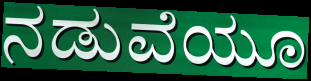
ನಡುವೆಯೂ